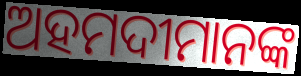
ଅହମଦୀମାନଙ୍କ